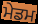
ਮੇਡਮ